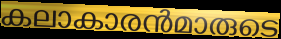
കലാകാരൻമാരുടെ